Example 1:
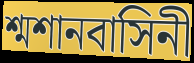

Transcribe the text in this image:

শ্মশানবাসিনী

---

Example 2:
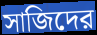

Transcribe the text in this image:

সাজিদের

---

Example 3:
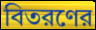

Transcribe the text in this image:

বিতরণের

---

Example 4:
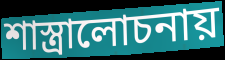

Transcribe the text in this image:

শাস্ত্রালোচনায়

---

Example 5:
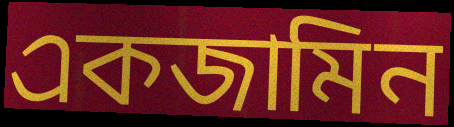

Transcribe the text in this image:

একজামিন